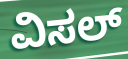
ವಿಸಲ್